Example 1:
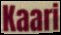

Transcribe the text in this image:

Kaari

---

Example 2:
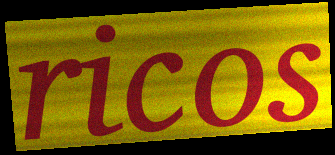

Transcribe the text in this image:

ricos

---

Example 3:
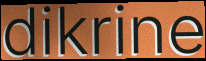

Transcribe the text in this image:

dikrine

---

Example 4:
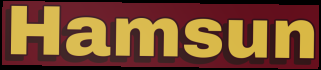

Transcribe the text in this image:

Hamsun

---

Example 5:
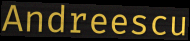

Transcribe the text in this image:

Andreescu